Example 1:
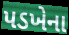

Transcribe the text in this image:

પડખેના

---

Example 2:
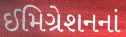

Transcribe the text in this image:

ઈમિગ્રેશનનાં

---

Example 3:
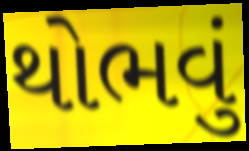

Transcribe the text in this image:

થોભવું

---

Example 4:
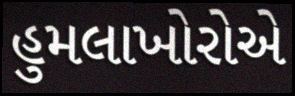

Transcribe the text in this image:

હુમલાખોરોએ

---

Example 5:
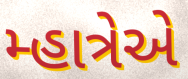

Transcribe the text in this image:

મ્હાત્રેએ